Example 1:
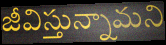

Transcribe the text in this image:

జీవిస్తున్నామని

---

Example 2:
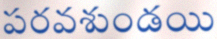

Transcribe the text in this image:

పరవశుండయి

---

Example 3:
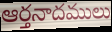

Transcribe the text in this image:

ఆర్తనాదములు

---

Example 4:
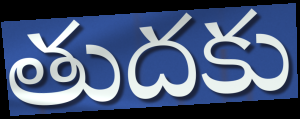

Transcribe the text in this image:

తుదకు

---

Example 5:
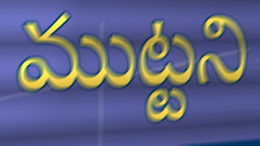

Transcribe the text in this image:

ముట్టని